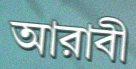
আরাবী